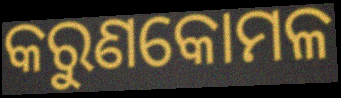
କରୁଣକୋମଳ